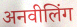
अनवीलिंग